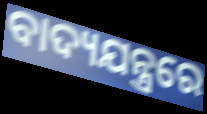
ବାଦ୍ୟଯନ୍ତ୍ରରେ